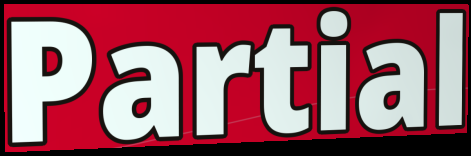
Partial